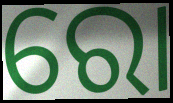
ରୋ